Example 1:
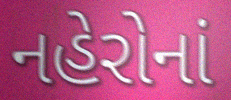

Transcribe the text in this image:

નહેરોનાં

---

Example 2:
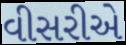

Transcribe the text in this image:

વીસરીએ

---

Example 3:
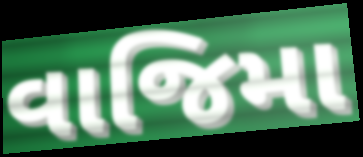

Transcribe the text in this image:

વાજિમા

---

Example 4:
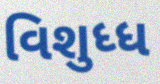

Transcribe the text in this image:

વિશુધ્ધ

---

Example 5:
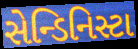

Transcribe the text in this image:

સેન્ડિનિસ્ટા